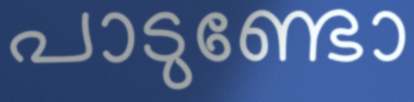
പാടുണ്ടോ